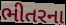
ભીતરના